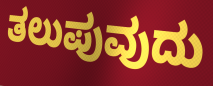
ತಲುಪುವುದು